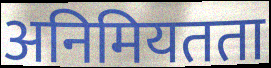
अनिमियतता